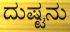
ದುಷ್ಟನು